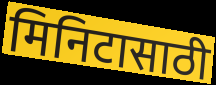
मिनिटासाठी